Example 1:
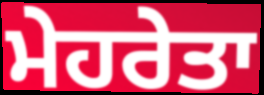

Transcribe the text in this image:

ਮੇਹਰੇਤਾ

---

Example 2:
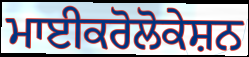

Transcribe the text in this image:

ਮਾਈਕਰੋਲੋਕੇਸ਼ਨ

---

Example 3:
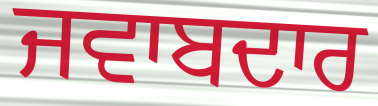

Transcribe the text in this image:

ਜਵਾਬਦਾਰ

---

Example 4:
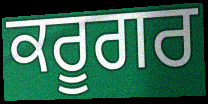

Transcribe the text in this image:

ਕਰੂਗਰ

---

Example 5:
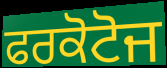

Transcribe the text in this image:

ਫਰਕੋਟੋਜ